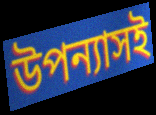
উপন্যাসই